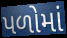
પળોમાં